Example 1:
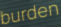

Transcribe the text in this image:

burden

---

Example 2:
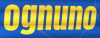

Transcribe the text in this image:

ognuno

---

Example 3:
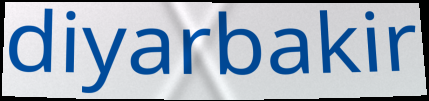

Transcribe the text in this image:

diyarbakir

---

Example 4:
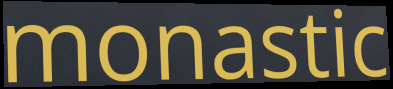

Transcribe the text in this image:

monastic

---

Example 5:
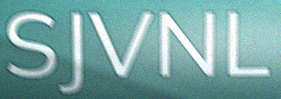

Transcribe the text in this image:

SJVNL